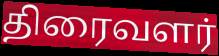
திரைவளர்